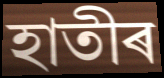
হাতীৰ